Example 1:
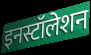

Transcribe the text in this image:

इनस्टॉलेशन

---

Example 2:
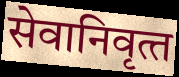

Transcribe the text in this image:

सेवानिवृत्‍त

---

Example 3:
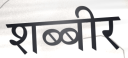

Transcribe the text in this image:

शब्बीर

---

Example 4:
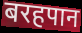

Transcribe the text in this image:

बरहपान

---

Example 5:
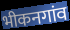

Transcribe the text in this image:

भीकनगांव